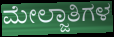
ಮೇಲ್ಜಾತಿಗಳ